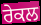
ਰੇਕਲ